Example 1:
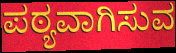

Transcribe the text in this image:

ಪಠ್ಯವಾಗಿಸುವ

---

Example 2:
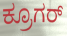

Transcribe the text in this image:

ಕ್ರೂಗರ್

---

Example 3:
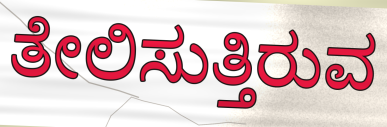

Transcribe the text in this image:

ತೇಲಿಸುತ್ತಿರುವ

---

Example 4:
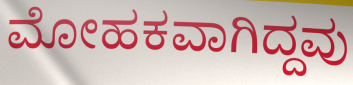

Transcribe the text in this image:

ಮೋಹಕವಾಗಿದ್ದವು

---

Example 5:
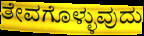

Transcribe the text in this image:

ತೇವಗೊಳ್ಳುವುದು